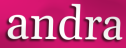
andra